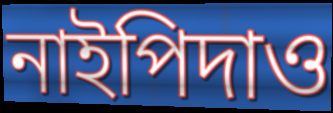
নাইপিদাও